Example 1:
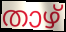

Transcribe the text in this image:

താഴ്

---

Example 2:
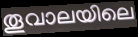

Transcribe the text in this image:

തൂവാലയിലെ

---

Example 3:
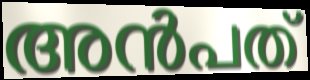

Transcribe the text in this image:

അൻപത്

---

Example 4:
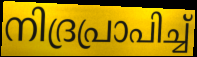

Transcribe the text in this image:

നിദ്രപ്രാപിച്ച്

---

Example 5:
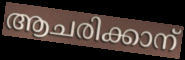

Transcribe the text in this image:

ആചരിക്കാന്